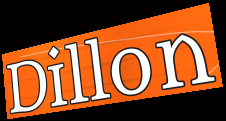
Dillon